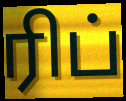
ரிப்